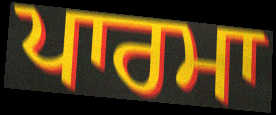
ਪਾਰਮਾ